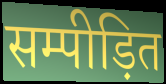
सम्पीड़ित